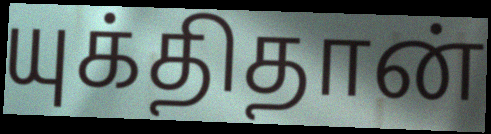
யுக்திதான்